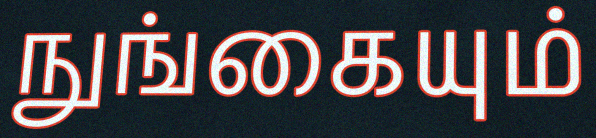
நுங்கையும்